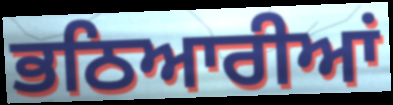
ਭਠਿਆਰੀਆਂ